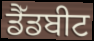
ਡੈੱਡਬੀਟ